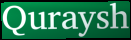
Quraysh